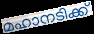
മഹാനടിക്ക്